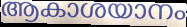
ആകാശയാനം